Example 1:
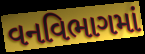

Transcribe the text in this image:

વનવિભાગમાં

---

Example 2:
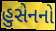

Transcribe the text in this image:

હુસેનનો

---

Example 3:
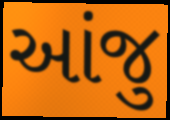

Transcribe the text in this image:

આંજુ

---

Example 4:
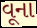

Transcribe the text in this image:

વૂના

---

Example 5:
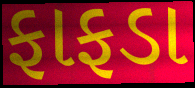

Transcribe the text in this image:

ફાફડા